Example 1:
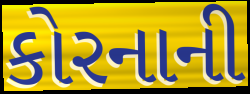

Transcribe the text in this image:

કોરનાની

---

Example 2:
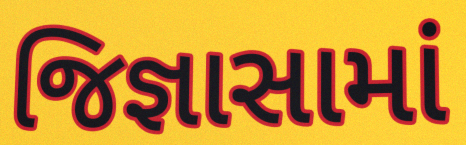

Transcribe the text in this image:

જિજ્ઞાસામાં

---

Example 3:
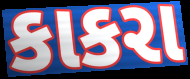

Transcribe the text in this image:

કાકરા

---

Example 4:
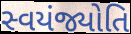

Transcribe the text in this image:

સ્વયંજ્યોતિ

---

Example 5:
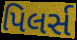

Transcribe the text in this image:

પિલર્સ